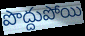
పొద్దుపోయి